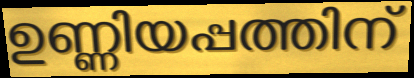
ഉണ്ണിയപ്പത്തിന്